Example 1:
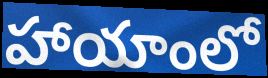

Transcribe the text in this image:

హాయాంలో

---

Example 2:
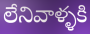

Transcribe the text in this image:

లేనివాళ్ళకి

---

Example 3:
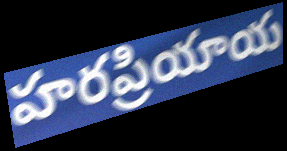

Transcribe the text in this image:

హరప్రియాయ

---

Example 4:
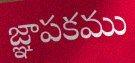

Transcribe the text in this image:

జ్ఞాపకము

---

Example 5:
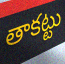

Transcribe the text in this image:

తాకట్టు